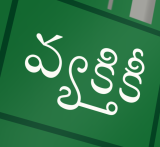
వ్యక్తికీ